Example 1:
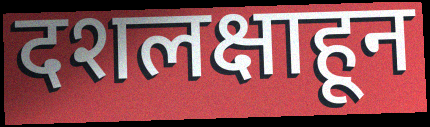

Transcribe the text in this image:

दशलक्षाहून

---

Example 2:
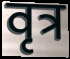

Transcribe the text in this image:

वृत्र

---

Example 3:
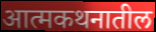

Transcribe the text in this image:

आत्मकथनातील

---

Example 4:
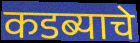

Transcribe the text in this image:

कडब्याचे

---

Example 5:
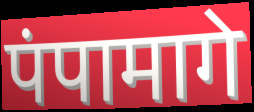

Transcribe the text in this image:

पंपामागे